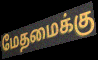
மேதமைக்கு